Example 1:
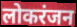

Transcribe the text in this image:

लोकरंजन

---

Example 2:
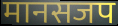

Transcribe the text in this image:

मानसजप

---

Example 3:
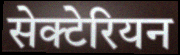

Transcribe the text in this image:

सेक्टेरियन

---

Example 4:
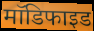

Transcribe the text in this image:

मॉडिफाइड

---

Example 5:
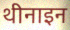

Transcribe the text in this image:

थीनाइन